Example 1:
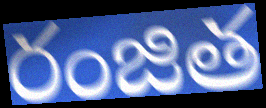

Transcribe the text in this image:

రంజిత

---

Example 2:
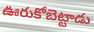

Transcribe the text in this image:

ఊరుకోబెట్టాడు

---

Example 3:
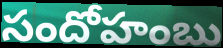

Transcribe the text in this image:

సందోహంబు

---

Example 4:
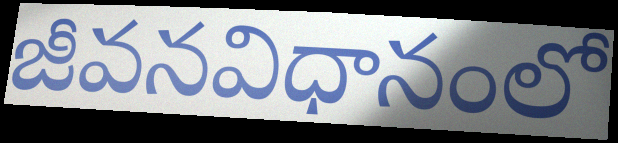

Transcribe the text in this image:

జీవనవిధానంలో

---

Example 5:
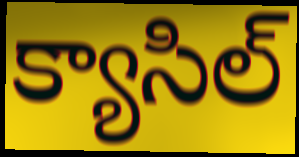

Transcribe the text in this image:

క్యాసిల్